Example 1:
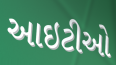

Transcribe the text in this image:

આઇટીઓ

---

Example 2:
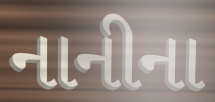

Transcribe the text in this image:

નાનીના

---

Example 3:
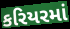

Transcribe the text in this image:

કરિયરમાં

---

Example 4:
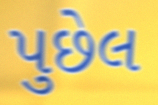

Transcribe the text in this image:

પુછેલ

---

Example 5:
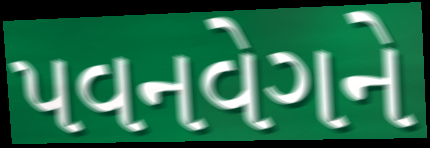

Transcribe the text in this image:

પવનવેગને